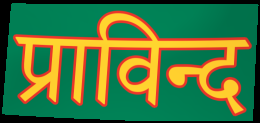
प्राविन्द